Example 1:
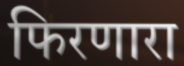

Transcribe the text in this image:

फिरणारा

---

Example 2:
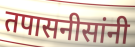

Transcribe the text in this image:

तपासनीसांनी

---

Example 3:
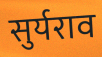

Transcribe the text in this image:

सुर्यराव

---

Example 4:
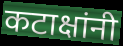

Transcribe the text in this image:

कटाक्षांनी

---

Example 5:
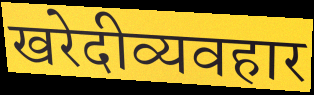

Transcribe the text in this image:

खरेदीव्यवहार